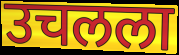
उचलला